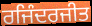
ਰਜਿੰਦਰਜੀਤ